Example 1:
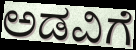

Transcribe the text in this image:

ಅಡವಿಗೆ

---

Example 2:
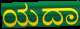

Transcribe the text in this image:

ಯದಾ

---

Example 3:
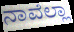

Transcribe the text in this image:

ನಾವೆಲ್ಲಾ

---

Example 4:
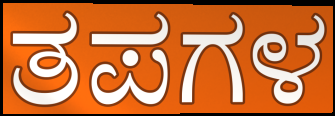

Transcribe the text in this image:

ತಪಗಳ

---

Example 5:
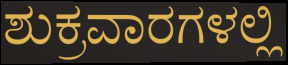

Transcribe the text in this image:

ಶುಕ್ರವಾರಗಳಲ್ಲಿ